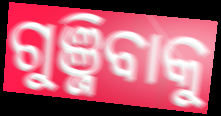
ଗୁଞ୍ଜିବାକୁ